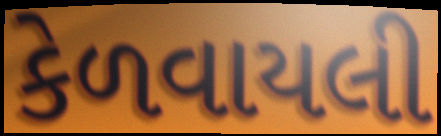
કેળવાયલી